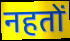
नहतों